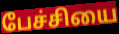
பேச்சியை